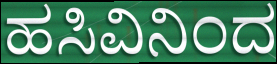
ಹಸಿವಿನಿಂದ